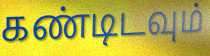
கண்டிடவும்